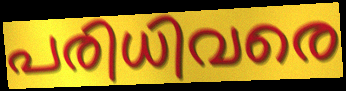
പരിധിവരെ